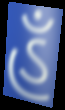
હઁ